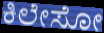
ಕಿಲೇಸೋ